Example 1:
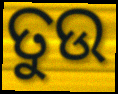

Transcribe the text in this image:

ତୁଉ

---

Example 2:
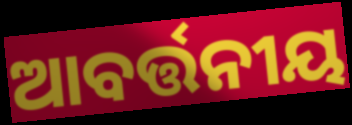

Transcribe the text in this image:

ଆବର୍ତ୍ତନୀୟ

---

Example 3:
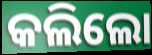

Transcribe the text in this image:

କଲିଲୋ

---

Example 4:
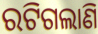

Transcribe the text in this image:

ରଟିଗଲାଣି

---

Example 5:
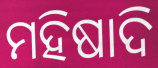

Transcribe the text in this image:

ମହିଷାଦି